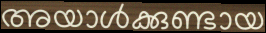
അയാൾക്കുണ്ടായ